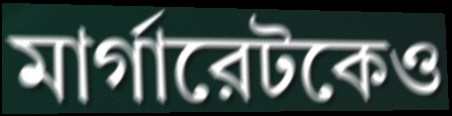
মার্গারেটকেও